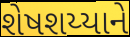
શેષશય્યાને